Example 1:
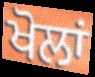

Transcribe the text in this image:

ਖੋਲਾਂ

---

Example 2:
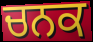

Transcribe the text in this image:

ਚਨਕ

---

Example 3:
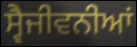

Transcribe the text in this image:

ਸ੍ਵੈਜੀਵਨੀਆਂ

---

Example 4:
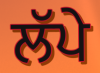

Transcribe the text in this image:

ਲੱਪੇ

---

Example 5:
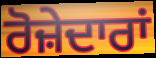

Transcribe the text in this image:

ਰੋਜ਼ੇਦਾਰਾਂ